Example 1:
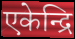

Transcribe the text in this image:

एकेन्द्रि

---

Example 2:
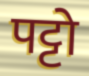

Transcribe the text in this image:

पट्टो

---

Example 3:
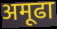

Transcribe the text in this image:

अमूढा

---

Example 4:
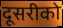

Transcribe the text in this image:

दूसरीको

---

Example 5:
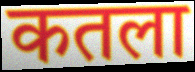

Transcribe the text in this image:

कतला